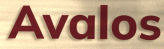
Avalos